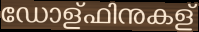
ഡോള്ഫിനുകള്